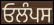
ਓਲੰਪਸ